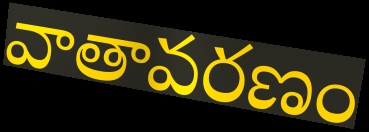
వాతావరణం